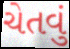
ચેતવું